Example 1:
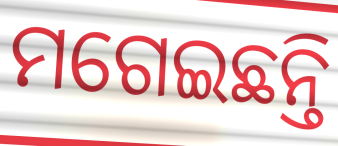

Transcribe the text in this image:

ମଗେଇଛନ୍ତି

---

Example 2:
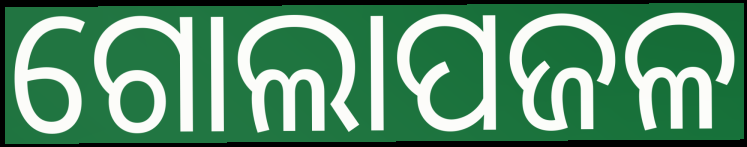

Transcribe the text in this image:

ଗୋଲାପଜଳ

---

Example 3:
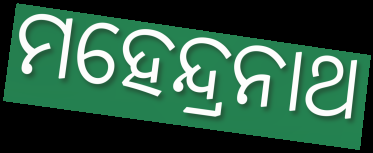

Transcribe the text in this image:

ମହେନ୍ଦ୍ରନାଥ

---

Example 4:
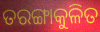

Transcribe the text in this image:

ତରଙ୍ଗାକୁଳିତ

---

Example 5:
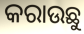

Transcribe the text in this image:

କରାଉଛୁ